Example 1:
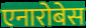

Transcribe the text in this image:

एनारोबेस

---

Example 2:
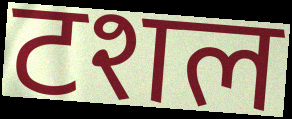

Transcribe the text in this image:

टशल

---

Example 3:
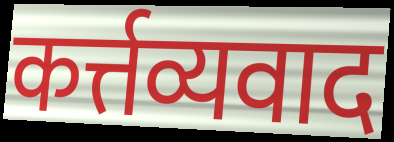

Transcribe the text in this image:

कर्त्तव्यवाद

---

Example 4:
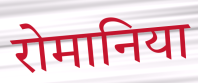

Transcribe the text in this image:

रोमानिया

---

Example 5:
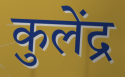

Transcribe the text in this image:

कुलेंद्र